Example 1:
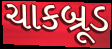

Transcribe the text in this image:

ચાકબ્રૂડ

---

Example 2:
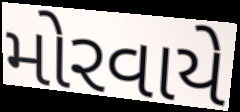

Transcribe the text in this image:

મોરવાયે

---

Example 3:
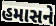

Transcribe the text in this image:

હમાસને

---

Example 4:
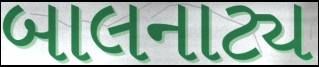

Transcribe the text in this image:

બાલનાટ્ય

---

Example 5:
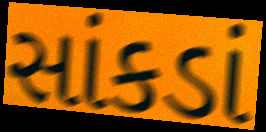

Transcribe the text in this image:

સાંકડાં